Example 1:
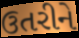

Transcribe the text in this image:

ઉતરીને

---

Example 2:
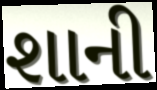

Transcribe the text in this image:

શાની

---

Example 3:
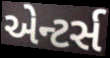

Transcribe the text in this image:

એન્ટર્સ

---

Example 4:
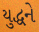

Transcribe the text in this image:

યુદ્ધને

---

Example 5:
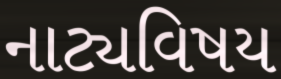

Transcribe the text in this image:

નાટ્યવિષય